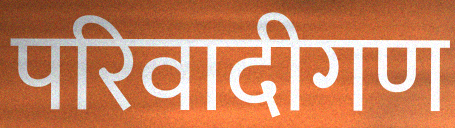
परिवादीगण